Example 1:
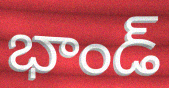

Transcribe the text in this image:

భాండ్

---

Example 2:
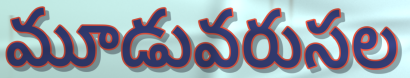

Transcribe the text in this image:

మూడువరుసల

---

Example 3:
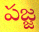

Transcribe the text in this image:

పజ్జ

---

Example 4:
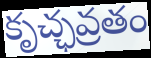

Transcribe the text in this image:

కృచ్ఛవ్రతం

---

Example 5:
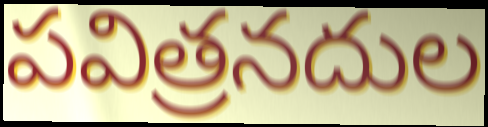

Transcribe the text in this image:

పవిత్రనదుల